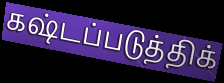
கஷ்டப்படுத்திக்